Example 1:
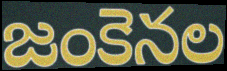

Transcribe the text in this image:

జంకెనల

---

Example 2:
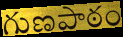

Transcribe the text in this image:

గుణపాఠం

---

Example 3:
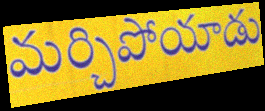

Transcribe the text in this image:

మర్చిపోయాడు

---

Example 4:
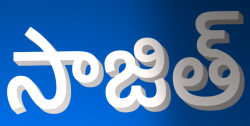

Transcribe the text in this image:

సాజిత్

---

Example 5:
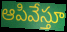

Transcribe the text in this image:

ఆపివేస్తూ